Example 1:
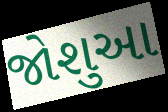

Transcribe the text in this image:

જોશુઆ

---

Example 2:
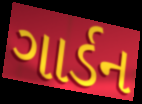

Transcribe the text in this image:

ગાર્ડન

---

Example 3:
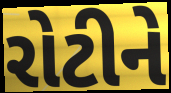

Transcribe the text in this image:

રોટીને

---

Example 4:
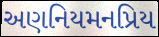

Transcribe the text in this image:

અણનિયમનપ્રિય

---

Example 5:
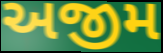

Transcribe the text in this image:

અજીમ